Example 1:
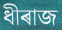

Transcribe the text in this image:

ধীৰাজ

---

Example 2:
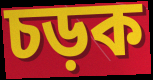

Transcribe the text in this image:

চড়ক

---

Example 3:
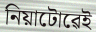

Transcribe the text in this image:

নিয়াটোৱেই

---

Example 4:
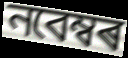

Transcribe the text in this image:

নবেম্বৰ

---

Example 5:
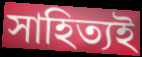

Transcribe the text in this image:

সাহিত্য়ই